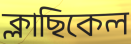
ক্লাছিকেল